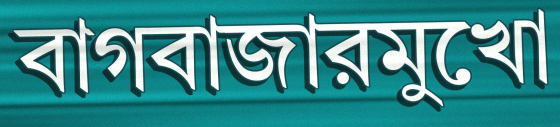
বাগবাজারমুখো